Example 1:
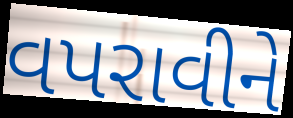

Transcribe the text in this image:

વપરાવીને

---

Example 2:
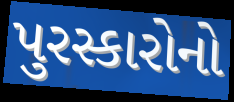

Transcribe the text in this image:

પુરસ્કારોનો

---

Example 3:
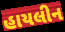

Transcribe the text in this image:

હાયલીન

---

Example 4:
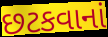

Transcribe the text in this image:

છટકવાનાં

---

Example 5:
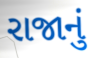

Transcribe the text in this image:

રાજાનું